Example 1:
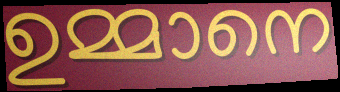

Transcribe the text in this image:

ഉമ്മാനെ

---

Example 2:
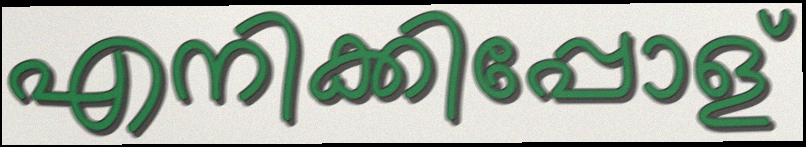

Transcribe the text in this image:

എനിക്കിപ്പോള്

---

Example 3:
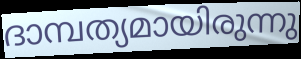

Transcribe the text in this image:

ദാമ്പത്യമായിരുന്നു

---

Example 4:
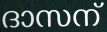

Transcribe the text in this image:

ദാസന്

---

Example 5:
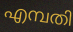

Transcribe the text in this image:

എമ്പതി